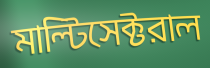
মাল্টিসেক্টরাল